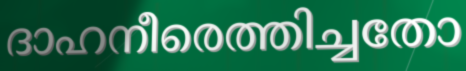
ദാഹനീരെത്തിച്ചതോ